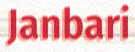
Janbari